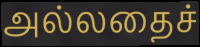
அல்லதைச்